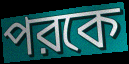
পরকে